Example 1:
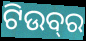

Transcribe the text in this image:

ଟିଉବ୍‍ର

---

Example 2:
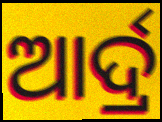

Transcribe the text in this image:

ଆର୍ଦ୍ର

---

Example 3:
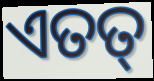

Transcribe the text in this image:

ଏତତ୍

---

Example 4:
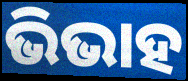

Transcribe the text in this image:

ଭିଭାହ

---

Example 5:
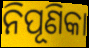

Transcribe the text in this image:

ନିପୂଣିକା